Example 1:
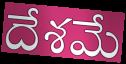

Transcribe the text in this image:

దేశమే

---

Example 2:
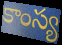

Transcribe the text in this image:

కాంస్య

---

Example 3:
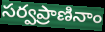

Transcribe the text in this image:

సర్వప్రాణినాం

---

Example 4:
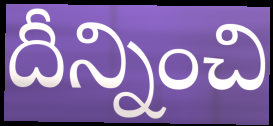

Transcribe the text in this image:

దీన్నించి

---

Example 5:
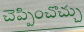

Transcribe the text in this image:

చెప్పించొచ్చు